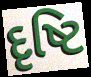
દૃષ્ટિ